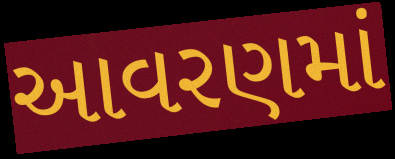
આવરણમાં